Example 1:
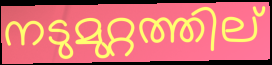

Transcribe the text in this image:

നടുമുറ്റത്തില്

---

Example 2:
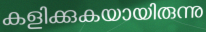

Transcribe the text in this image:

കളിക്കുകയായിരുന്നു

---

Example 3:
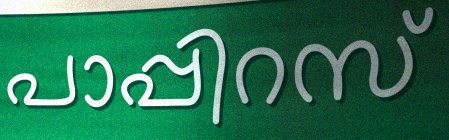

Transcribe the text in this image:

പാപ്പിറസ്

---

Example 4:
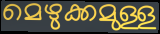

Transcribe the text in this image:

മെഴുക്കമുള്ള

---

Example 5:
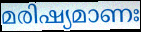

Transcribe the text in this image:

മരിഷ്യമാണഃ